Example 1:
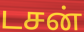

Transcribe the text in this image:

டசன்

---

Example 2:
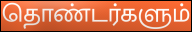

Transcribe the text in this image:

தொண்டர்களும்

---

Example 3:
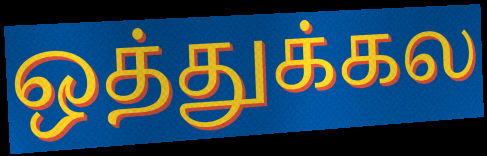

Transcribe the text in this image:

ஒத்துக்கல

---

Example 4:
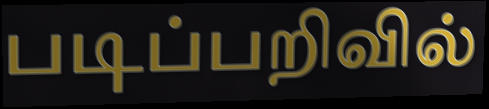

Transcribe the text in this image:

படிப்பறிவில்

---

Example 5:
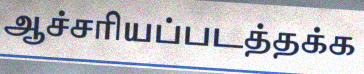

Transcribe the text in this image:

ஆச்சரியப்படத்தக்க